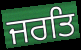
ਜਰਤਿ